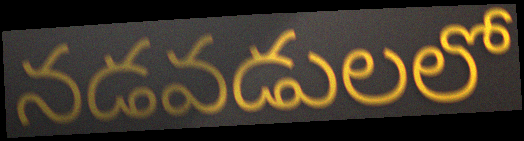
నడవడులలో